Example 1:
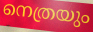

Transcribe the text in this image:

നെത്രയും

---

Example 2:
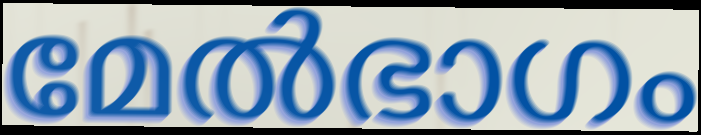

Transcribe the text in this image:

മേൽഭാഗം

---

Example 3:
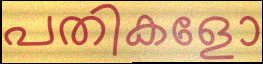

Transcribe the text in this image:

പതികളോ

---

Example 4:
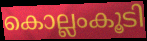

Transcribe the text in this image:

കൊല്ലംകൂടി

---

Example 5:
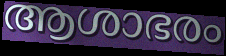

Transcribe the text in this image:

ആശാഭരം